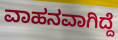
ವಾಹನವಾಗಿದ್ದೆ